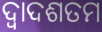
ଦ୍ୱାଦଶତମ